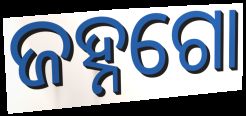
ଜହ୍ନଗୋ